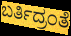
ಬರ್ತಿದ್ರಂತೆ